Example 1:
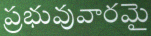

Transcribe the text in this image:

ప్రభువువారమై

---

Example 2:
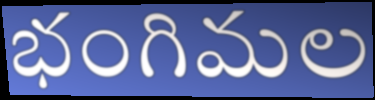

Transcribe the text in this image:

భంగిమల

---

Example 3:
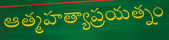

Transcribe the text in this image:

ఆత్మహత్యాప్రయత్నం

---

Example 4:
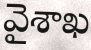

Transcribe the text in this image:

వైశాఖ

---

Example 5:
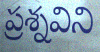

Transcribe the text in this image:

ప్రశ్నవిని